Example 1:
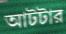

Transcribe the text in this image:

আটটার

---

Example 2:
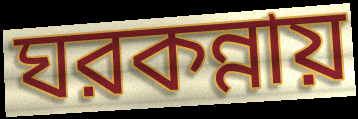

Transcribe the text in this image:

ঘরকন্নায়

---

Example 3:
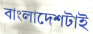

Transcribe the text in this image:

বাংলাদেশটাই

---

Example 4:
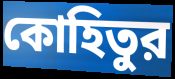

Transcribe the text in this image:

কোহিতুর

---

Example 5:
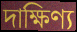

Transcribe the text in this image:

দাক্ষিণ্য